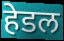
हेडल